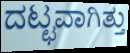
ದಟ್ಟವಾಗಿತ್ತು